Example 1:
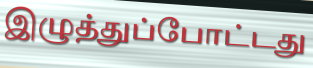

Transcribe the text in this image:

இழுத்துப்போட்டது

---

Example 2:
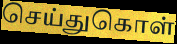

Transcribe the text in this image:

செய்துகொள்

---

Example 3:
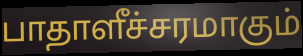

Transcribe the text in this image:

பாதாளீச்சரமாகும்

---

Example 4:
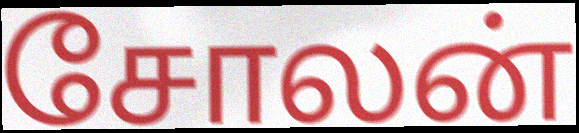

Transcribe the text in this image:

சோலன்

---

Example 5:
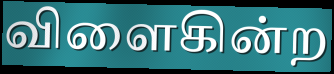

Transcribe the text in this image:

விளைகின்ற